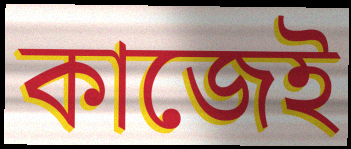
কাজেই